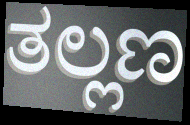
ತಲ್ಲಣ